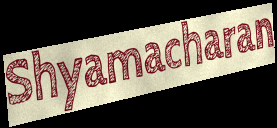
Shyamacharan